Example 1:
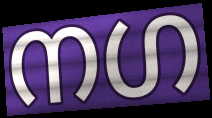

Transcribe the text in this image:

നഗ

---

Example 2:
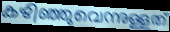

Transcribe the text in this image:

കഴിഞ്ഞുവെന്നുള്ളത്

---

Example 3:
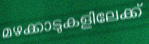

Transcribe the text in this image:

മഴക്കാടുകളിലേക്ക്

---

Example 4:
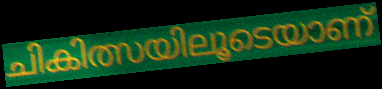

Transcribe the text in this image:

ചികിത്സയിലൂടെയാണ്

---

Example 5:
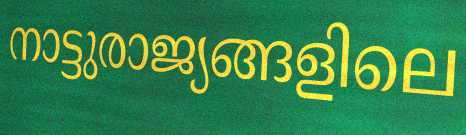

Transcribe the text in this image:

നാട്ടുരാജ്യങ്ങളിലെ